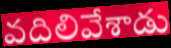
వదిలివేశాడు